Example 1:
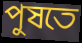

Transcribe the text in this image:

পুষতে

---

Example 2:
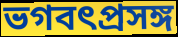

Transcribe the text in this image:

ভগবৎপ্রসঙ্গ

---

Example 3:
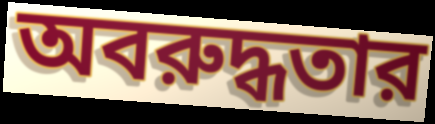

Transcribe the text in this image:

অবরুদ্ধতার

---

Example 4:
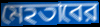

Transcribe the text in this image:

মেহতাবের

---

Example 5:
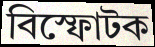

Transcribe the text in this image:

বিস্ফোটক